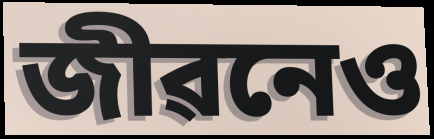
জীৱনেও